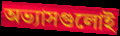
অভ্যাসগুলোই